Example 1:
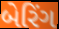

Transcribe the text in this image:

બેરિંગ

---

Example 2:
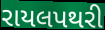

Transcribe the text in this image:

રાયલપથરી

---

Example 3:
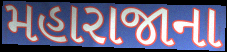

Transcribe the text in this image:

મહારાજાના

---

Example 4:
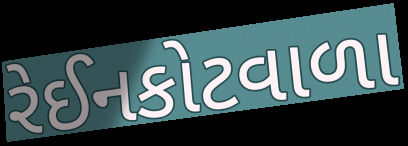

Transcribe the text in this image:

રેઈનકોટવાળા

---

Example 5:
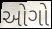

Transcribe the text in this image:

ઓગો